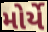
મોર્યે